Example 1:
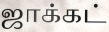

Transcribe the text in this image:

ஜாக்கட்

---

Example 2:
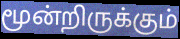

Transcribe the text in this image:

மூன்றிருக்கும்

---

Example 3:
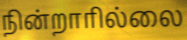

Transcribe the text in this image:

நின்றாரில்லை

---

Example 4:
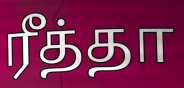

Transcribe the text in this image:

ரீத்தா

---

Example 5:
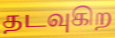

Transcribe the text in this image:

தடவுகிற